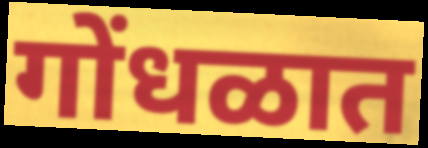
गोंधळात